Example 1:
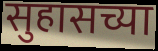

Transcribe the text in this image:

सुहासच्या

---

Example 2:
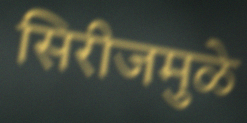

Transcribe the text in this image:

सिरीजमुळे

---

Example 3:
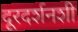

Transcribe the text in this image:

दूरदर्शनशी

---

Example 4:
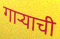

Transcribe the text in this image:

गाऱ्याची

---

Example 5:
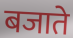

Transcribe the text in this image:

बजाते